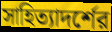
সাহিত্যাদর্শের